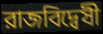
রাজবিদ্বেষী